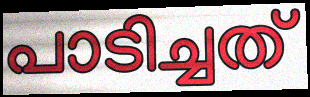
പാടിച്ചത്